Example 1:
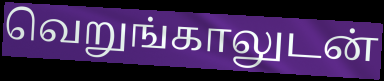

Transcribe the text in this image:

வெறுங்காலுடன்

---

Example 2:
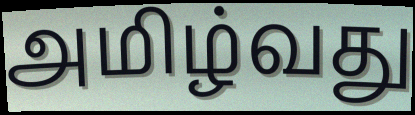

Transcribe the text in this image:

அமிழ்வது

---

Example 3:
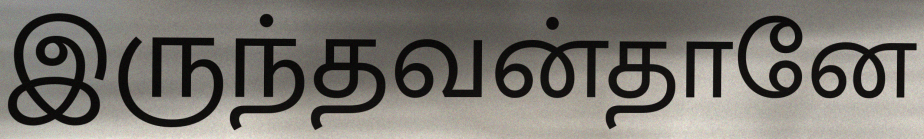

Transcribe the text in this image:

இருந்தவன்தானே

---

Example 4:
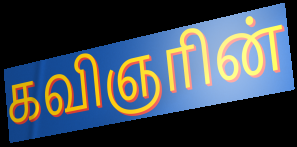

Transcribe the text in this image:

கவிஞரின்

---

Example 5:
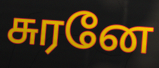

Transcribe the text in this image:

சுரனே